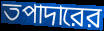
তপাদারের